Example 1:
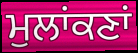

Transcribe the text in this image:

ਮੁਲਾਂਕਣਾਂ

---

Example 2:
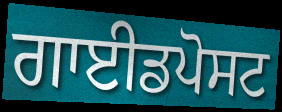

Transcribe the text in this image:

ਗਾਈਡਪੋਸਟ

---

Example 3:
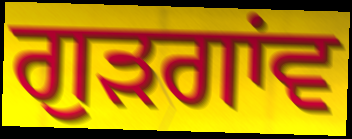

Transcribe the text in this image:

ਗੁਡ਼ਗਾਂਵ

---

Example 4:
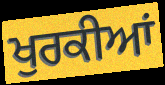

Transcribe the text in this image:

ਖੁਰਕੀਆਂ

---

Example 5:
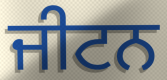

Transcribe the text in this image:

ਜੀਟਨ